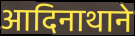
आदिनाथाने